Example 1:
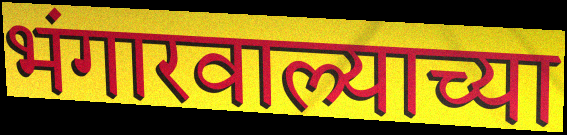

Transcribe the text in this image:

भंगारवाल्याच्या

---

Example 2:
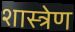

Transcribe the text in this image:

शास्त्रेण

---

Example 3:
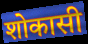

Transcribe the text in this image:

शोकासी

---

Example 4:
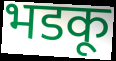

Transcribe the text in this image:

भडकू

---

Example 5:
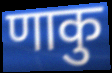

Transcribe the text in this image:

णाकु